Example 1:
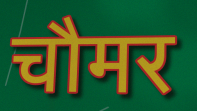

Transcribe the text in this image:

चौमर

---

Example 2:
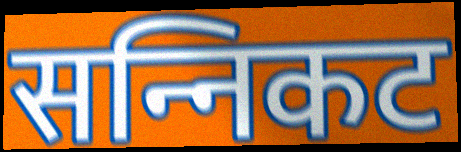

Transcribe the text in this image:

सन्निकट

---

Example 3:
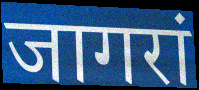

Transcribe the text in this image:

जागरां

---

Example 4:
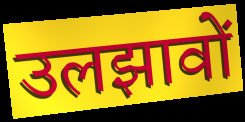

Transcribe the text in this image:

उलझावों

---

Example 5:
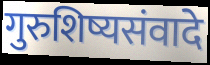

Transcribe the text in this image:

गुरुशिष्यसंवादे